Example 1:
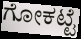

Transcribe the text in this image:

ಗೋಕಟ್ಟೆ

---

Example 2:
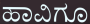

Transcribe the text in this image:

ಹಾವಿಗೂ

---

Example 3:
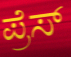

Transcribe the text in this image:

ಪ್ರೆಸ್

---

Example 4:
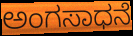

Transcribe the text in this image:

ಅಂಗಸಾಧನೆ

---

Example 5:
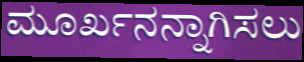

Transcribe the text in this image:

ಮೂರ್ಖನನ್ನಾಗಿಸಲು